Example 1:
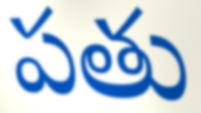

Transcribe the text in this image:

పతు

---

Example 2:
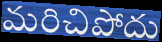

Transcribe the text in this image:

మరిచిపోదు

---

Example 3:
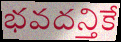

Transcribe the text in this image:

భవదన్తికే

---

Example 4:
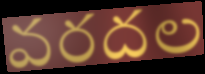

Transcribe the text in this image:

వరదల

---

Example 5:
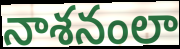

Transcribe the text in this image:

నాశనంలా